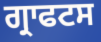
ਗ੍ਰਾਫਟਸ